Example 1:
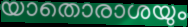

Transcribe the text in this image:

യാതൊരാശയും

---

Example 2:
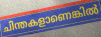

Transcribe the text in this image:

ചിന്തകളാണെങ്കിൽ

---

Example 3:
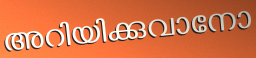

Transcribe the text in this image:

അറിയിക്കുവാനോ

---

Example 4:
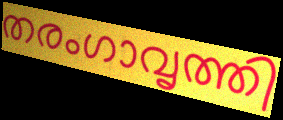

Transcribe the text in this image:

തരംഗാവൃത്തി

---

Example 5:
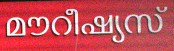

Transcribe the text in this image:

മൗറീഷ്യസ്